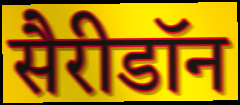
सैरीडॉन